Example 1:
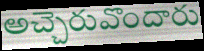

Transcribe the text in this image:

అచ్చెరువొందారు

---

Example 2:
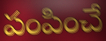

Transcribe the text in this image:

పంపించే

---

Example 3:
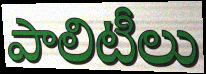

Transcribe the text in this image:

పాలిటీలు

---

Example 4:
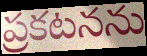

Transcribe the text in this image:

ప్రకటనను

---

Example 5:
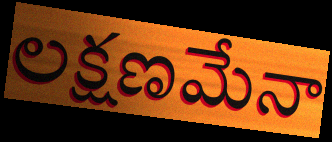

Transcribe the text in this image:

లక్షణమేనా